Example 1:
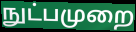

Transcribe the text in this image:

நுட்பமுறை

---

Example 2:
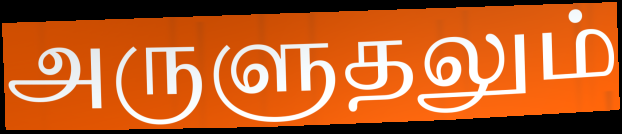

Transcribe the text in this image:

அருளுதலும்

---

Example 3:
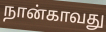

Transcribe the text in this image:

நான்காவது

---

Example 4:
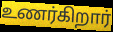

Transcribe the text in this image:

உணர்கிறார்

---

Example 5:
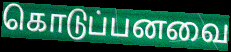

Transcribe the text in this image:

கொடுப்பனவை